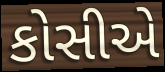
કોસીએ